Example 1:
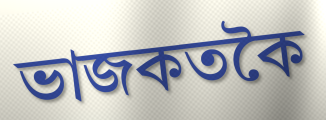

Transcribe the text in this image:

ভাজকতকৈ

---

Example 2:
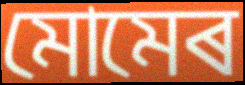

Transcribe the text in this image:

মোমেৰ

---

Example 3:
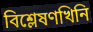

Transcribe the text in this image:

বিশ্লেষণখিনি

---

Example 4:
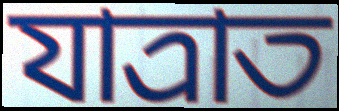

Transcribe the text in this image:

যাত্ৰাত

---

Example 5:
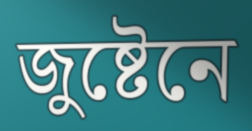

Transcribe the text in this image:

জুষ্টেনে